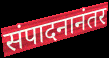
संपादनानंतर